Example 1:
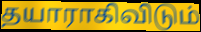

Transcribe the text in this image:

தயாராகிவிடும்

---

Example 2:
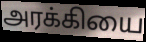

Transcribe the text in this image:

அரக்கியை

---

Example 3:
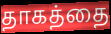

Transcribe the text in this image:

தாகத்தை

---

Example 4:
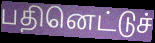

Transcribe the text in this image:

பதினெட்டுச்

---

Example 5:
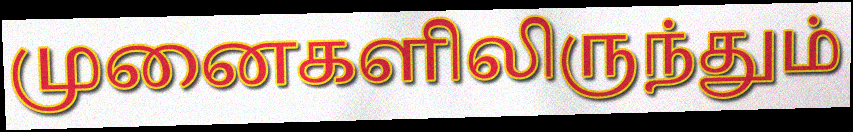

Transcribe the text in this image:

முனைகளிலிருந்தும்